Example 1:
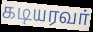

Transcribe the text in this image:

கடியரவர்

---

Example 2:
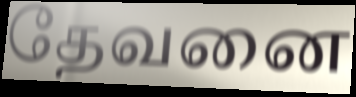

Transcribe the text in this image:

தேவனை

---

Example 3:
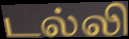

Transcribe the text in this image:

டல்லி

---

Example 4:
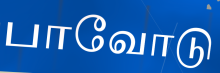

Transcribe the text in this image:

பாவோடு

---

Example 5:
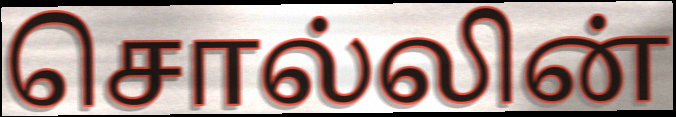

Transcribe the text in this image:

சொல்லின்